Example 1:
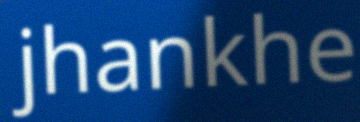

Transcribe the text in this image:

jhankhe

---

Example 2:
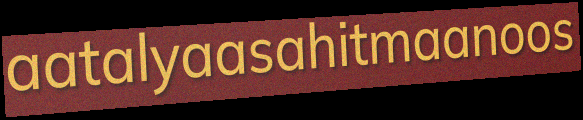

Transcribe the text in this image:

aatalyaasahitmaanoos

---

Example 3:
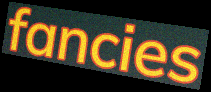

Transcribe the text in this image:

fancies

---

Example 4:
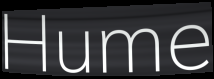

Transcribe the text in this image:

Hume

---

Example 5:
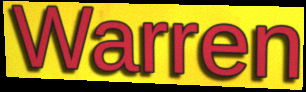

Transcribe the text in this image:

Warren